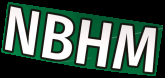
NBHM